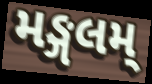
મઙ્ગલમ્